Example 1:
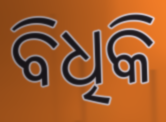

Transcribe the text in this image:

ବିଧିକି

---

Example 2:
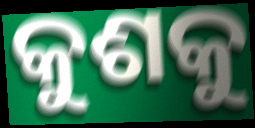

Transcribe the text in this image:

କୁଶକୁ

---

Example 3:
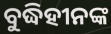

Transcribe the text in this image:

ବୁଦ୍ଧିହୀନଙ୍କ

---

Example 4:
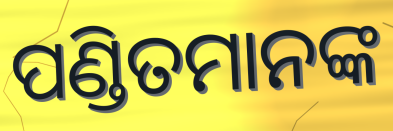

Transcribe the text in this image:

ପଣ୍ଡିତମାନଙ୍କ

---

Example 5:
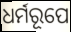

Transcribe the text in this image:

ଧର୍ମରୂପେ